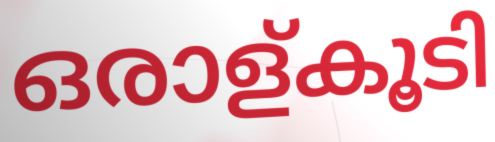
ഒരാള്കൂടി